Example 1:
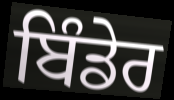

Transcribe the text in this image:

ਬਿੰਡੇਰ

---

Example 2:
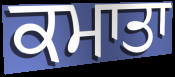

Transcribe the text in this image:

ਕਮਾਤਾ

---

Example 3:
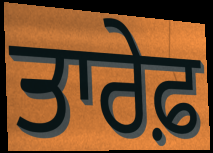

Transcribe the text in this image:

ਤਾਰੇਫ਼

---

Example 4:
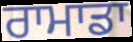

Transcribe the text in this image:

ਰਾਮਾਡਾ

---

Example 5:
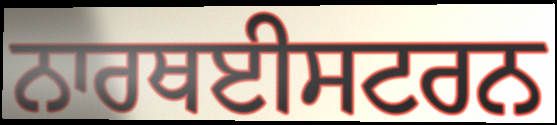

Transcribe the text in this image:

ਨਾਰਥਈਸਟਰਨ